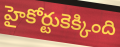
హైకోర్టుకెక్కింది